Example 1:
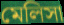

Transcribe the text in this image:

মেলিসা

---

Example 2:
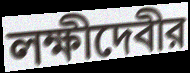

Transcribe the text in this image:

লক্ষীদেবীর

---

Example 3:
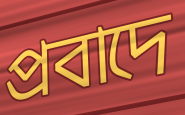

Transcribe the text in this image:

প্রবাদে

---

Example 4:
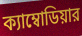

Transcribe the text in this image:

ক্যাম্বোডিয়ার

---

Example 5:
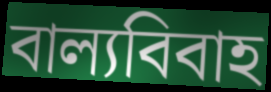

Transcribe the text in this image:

বাল্যবিবাহ